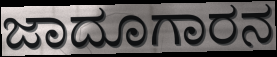
ಜಾದೂಗಾರನ